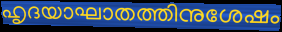
ഹൃദയാഘാതത്തിനുശേഷം